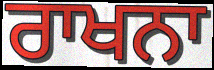
ਰਾਖਨਾ